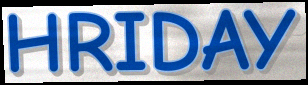
HRIDAY